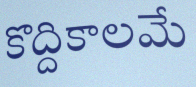
కొద్దికాలమే